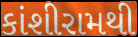
કાંશીરામથી